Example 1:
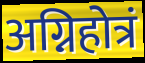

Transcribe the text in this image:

अग्निहोत्रं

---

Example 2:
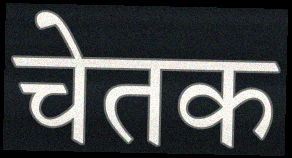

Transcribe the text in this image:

चेतक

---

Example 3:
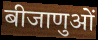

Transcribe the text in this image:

बीजाणुओं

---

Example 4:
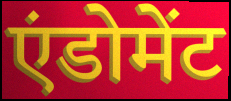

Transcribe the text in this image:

एंडोमेंट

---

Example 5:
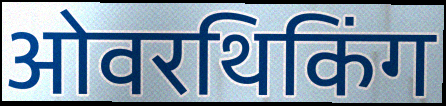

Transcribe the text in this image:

ओवरथिकिंग